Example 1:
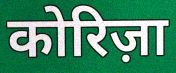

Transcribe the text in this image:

कोरिज़ा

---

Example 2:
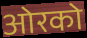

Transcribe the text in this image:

ओरको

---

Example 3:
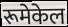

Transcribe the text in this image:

रूमेकेल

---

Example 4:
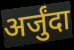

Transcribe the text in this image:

अर्जुंदा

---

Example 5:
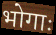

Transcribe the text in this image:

भोगाः